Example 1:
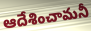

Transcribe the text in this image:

ఆదేశించామనీ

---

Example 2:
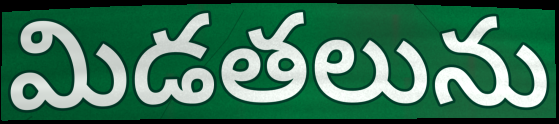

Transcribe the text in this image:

మిడతలును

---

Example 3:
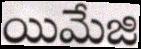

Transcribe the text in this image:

యిమేజి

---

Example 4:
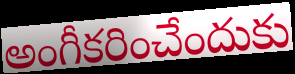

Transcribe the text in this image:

అంగీకరించేందుకు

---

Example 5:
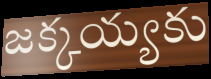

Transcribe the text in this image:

జక్కయ్యకు